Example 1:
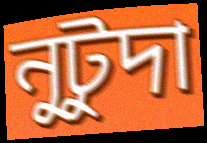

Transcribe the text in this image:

নুটুদা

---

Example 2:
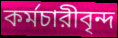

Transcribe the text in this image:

কর্মচারীবৃন্দ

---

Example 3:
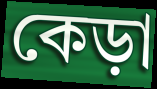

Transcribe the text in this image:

কেড়া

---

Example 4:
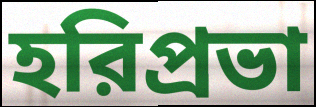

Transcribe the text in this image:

হরিপ্রভা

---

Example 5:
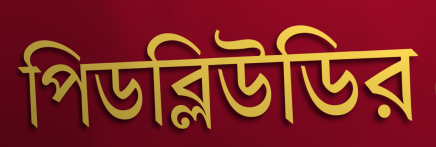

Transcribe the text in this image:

পিডব্লিউডির